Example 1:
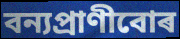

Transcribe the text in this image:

বন্যপ্ৰাণীবোৰ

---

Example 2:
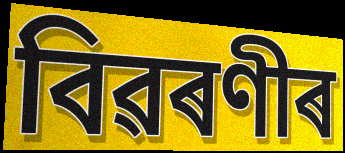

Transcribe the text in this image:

বিৱৰণীৰ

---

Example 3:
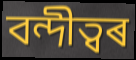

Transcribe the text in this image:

বন্দীত্বৰ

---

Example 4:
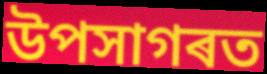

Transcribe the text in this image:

উপসাগৰত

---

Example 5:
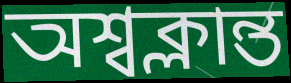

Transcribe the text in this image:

অশ্বক্লান্ত